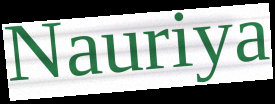
Nauriya